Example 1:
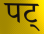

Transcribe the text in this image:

पट्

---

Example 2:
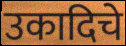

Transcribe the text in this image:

उकादिचे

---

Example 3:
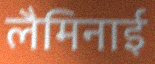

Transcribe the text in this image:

लैमिनाई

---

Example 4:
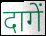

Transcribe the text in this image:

दागें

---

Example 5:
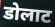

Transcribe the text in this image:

डोलाट